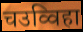
चउव्विहा